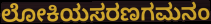
ಲೋಕಿಯಸರಣಗಮನಂ